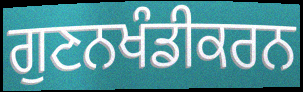
ਗੁਣਨਖੰਡੀਕਰਨ